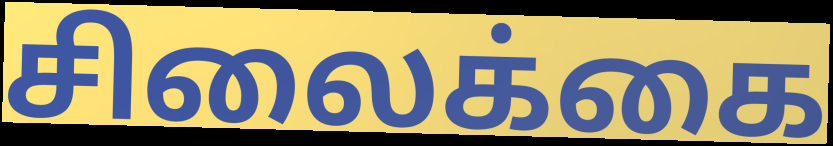
சிலைக்கை